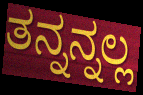
ತನ್ನನ್ನಲ್ಲ